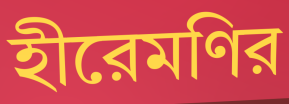
হীরেমণির